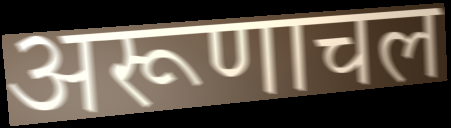
अरूणाचल